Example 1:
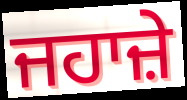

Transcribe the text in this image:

ਜਹਾਜ਼ੇ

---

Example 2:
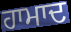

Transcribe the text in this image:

ਹਾਮਾਦ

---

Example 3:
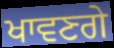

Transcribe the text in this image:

ਖਾਵਣਗੇ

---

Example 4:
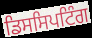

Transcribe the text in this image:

ਡਿਸਸਿਪਟਿੰਗ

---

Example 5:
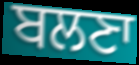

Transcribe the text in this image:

ਬਲਣਾ